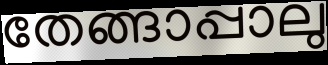
തേങ്ങാപ്പാലു